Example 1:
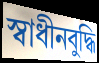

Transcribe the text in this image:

স্বাধীনবুদ্ধি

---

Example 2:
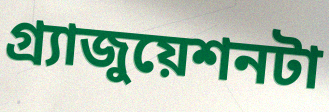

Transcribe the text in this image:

গ্র্যাজুয়েশনটা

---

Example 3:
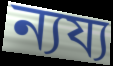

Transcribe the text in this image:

ন্যয্য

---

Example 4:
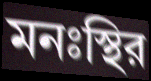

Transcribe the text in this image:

মনঃস্থির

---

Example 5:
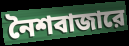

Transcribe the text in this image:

নৈশবাজারে